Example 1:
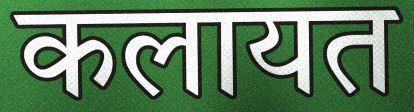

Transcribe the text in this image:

कलायत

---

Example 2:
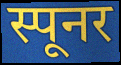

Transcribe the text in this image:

स्पूनर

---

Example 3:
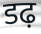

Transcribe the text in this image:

डढ़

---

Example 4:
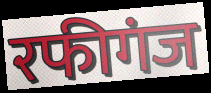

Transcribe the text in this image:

रफीगंज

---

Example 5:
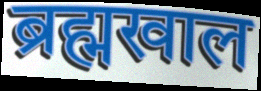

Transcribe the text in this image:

ब्रह्मखाल